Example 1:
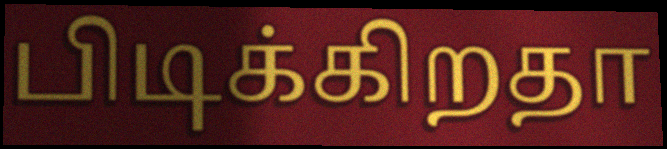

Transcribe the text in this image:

பிடிக்கிறதா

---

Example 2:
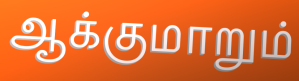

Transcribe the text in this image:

ஆக்குமாறும்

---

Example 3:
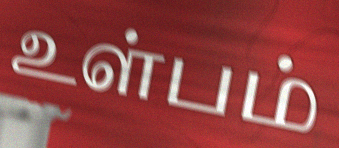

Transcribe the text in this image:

உள்பம்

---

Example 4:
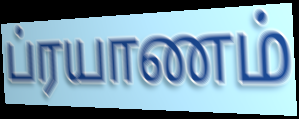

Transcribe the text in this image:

ப்ரயாணம்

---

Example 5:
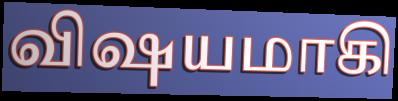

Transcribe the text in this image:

விஷயமாகி